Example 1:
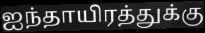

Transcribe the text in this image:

ஐந்தாயிரத்துக்கு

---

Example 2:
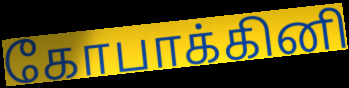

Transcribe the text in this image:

கோபாக்கினி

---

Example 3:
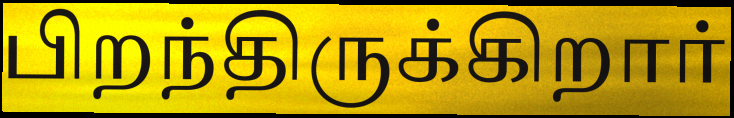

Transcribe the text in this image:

பிறந்திருக்கிறார்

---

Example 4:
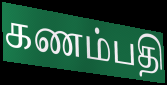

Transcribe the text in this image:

கணம்பதி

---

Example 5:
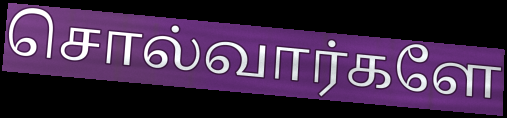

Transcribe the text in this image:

சொல்வார்களே